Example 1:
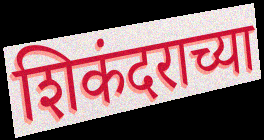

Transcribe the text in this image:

शिकंदराच्या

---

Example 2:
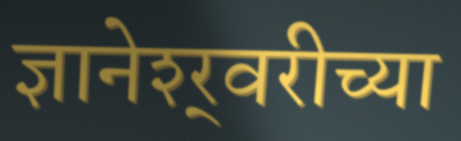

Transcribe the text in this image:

ज्ञानेश्र्वरीच्या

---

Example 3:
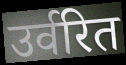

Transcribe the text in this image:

उर्वरित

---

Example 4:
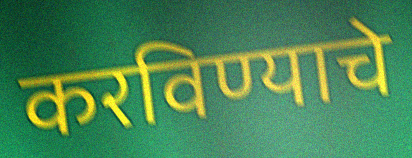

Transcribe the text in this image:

करविण्याचे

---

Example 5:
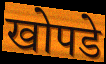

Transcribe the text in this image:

खोपडे